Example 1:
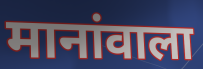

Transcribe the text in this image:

मानांवाला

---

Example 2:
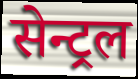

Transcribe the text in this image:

सेन्ट्रल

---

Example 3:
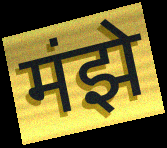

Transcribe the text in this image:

मंझे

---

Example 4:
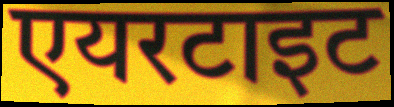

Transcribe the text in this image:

एयरटाइट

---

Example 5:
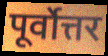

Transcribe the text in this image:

पूर्वोत्तर